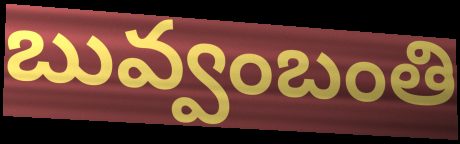
బువ్వంబంతి